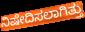
ನಿಷೇದಿಸಲಾಗಿತ್ತು